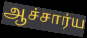
ஆச்சார்ய